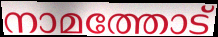
നാമത്തോട്